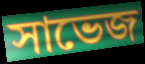
সাভেজ